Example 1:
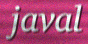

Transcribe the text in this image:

javal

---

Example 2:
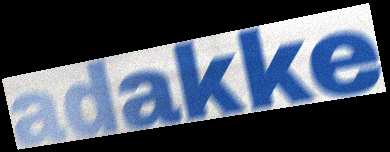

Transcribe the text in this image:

adakke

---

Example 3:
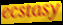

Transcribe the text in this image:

ecstasy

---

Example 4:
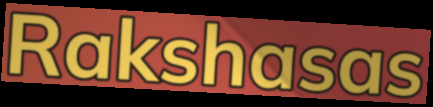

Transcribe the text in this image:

Rakshasas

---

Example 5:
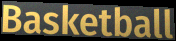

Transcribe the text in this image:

Basketball